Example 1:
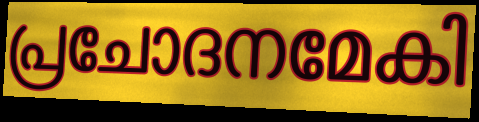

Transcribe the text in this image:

പ്രചോദനമേകി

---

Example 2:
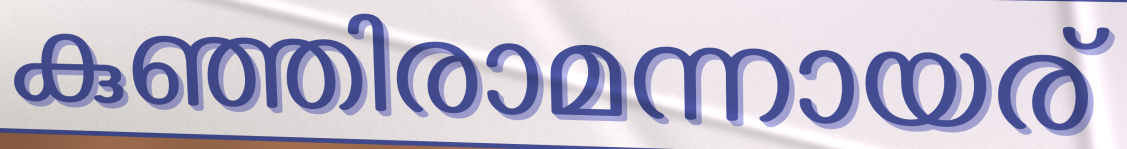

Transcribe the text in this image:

കുഞ്ഞിരാമന്നായര്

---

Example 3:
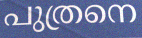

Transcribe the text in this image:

പുത്രനെ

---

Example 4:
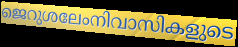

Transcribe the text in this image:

ജെറുശലേംനിവാസികളുടെ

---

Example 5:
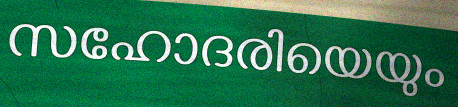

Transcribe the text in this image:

സഹോദരിയെയും